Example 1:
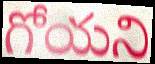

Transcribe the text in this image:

గోయని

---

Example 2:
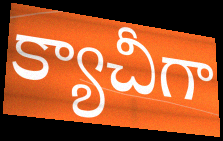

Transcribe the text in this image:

క్యాచీగా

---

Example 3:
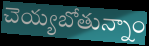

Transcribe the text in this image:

చెయ్యబోతున్నాం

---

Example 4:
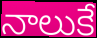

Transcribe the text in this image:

నాలుకే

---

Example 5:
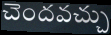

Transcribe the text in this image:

చెందవచ్చు